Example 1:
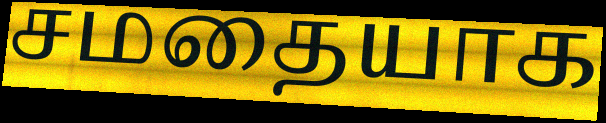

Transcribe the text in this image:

சமதையாக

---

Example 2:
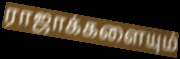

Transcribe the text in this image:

ராஜாக்களையும்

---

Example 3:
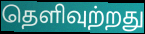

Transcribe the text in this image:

தெளிவுற்றது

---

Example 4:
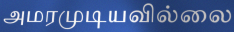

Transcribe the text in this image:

அமரமுடியவில்லை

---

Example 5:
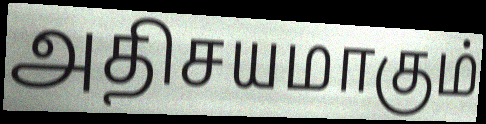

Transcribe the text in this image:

அதிசயமாகும்